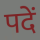
पदें